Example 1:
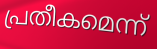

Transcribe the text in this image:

പ്രതീകമെന്ന്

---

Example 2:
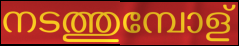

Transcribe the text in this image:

നടത്തുമ്പോള്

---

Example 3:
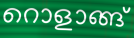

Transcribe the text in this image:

റൊളാങ്ങ്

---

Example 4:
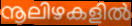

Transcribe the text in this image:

നൂലിഴകളിൽ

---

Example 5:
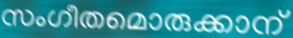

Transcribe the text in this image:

സംഗീതമൊരുക്കാന്